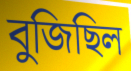
বুজিছিল